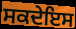
ਸਕਦੇਇਸ